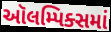
ઑલમ્પિક્સમાં